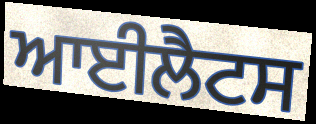
ਆਈਲੈਟਸ